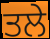
ਤਲੇ